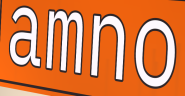
amno